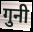
गुनी